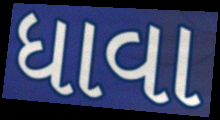
ધાવા